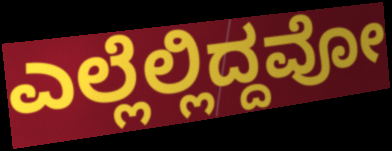
ಎಲ್ಲೆಲ್ಲಿದ್ದವೋ